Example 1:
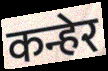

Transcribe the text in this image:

कन्हेर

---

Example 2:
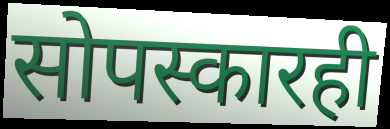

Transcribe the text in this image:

सोपस्कारही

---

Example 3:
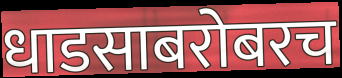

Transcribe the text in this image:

धाडसाबरोबरच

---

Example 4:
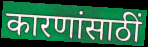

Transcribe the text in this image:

कारणांसाठीं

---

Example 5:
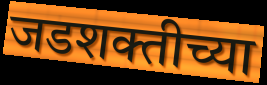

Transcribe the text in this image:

जडशक्तीच्या